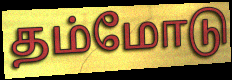
தம்மோடு